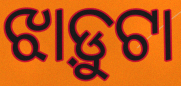
ଝାଡ଼ୁଟା